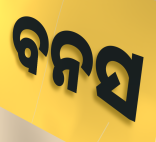
ବନସ